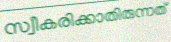
സ്വീകരിക്കാതിരുന്നത്